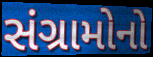
સંગ્રામોનો